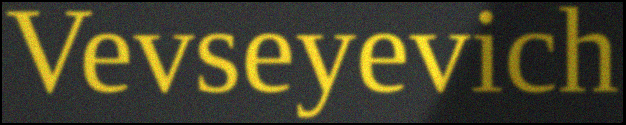
Vevseyevich